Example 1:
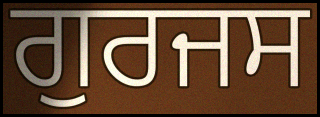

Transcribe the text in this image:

ਗੁਰਜਸ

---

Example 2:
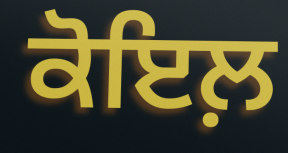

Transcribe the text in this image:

ਕੋਇਲ਼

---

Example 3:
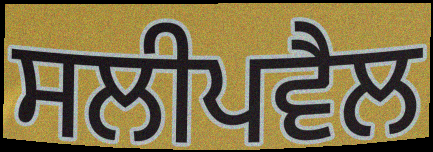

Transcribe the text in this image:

ਸਲੀਪਵੈਲ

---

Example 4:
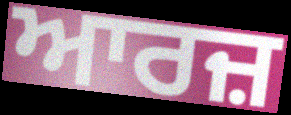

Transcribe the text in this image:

ਆਰਜ਼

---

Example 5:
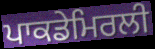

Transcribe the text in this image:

ਪਾਕਡੇਮਿਰਲੀ